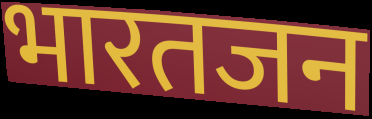
भारतजन